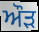
ਔਡ਼